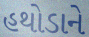
હથોડાને